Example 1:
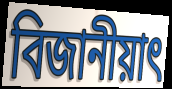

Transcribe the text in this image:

বিজানীয়াৎ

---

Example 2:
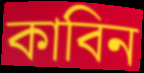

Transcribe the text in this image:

কাবিন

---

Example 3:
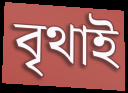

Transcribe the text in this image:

বৃথাই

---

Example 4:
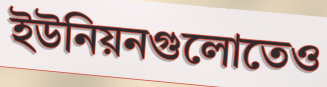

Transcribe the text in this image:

ইউনিয়নগুলোতেও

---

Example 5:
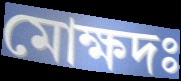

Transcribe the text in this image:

মোক্ষদঃ